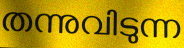
തന്നുവിടുന്ന